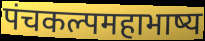
पंचकल्पमहाभाष्य